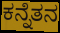
ಕನ್ನೆತನ